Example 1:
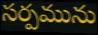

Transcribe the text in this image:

సర్పమును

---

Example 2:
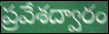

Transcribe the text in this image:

ప్రవేశద్వారం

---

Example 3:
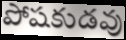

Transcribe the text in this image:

పోషకుడవు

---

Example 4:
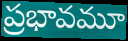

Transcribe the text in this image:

ప్రభావమూ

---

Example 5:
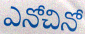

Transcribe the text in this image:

ఎనోచినో